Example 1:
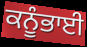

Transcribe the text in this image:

ਕਨੂੰਭਾਈ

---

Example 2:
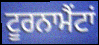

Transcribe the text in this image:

ਟੂਰਨਾਮੈਂਟਾਂ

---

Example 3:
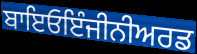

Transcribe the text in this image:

ਬਾਇਓਇੰਜੀਨੀਅਰਡ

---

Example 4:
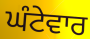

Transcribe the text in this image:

ਘੰਟੇਵਾਰ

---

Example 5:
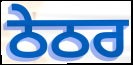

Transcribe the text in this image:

ਠੇਠਰ